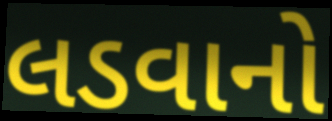
લડવાનો